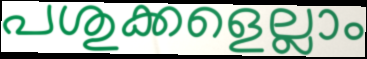
പശുക്കളെല്ലാം